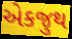
એકજુથ